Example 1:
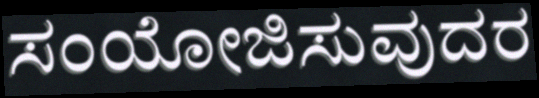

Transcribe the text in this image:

ಸಂಯೋಜಿಸುವುದರ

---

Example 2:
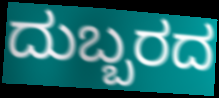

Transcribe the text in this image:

ದುಬ್ಬರದ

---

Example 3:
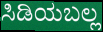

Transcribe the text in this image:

ಸಿಡಿಯಬಲ್ಲ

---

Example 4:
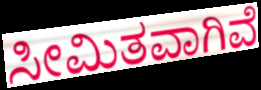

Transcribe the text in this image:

ಸೀಮಿತವಾಗಿವೆ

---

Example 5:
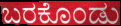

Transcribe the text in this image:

ಬರಕೊಂಡು